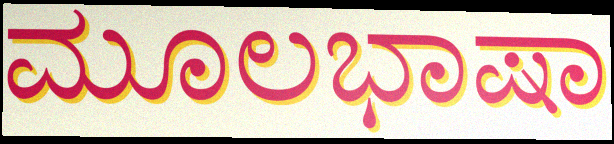
ಮೂಲಭಾಷಾ